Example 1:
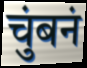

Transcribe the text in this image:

चुंबनं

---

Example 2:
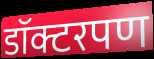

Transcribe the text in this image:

डॉक्टरपण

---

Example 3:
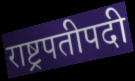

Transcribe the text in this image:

राष्ट्रपतीपदी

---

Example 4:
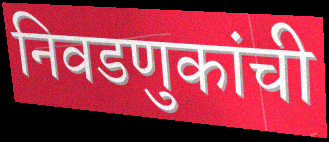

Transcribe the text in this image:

निवडणुकांची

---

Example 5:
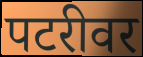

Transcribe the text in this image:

पटरीवर